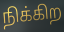
நிக்கிற